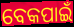
ବେକପାଇଁ